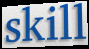
skill